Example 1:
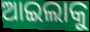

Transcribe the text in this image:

ଆଇଲାକୁ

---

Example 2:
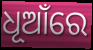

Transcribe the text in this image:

ଧୂଆଁରେ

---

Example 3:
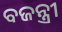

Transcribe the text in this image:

ବଜନ୍ତ୍ରୀ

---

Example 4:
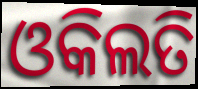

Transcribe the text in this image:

ଓକିଲତି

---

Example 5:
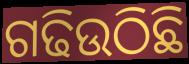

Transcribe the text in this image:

ଗଢିଉଠିଛି